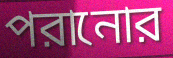
পরানোর